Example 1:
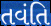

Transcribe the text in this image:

તવંતિ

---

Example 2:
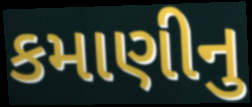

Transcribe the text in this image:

કમાણીનુ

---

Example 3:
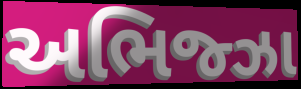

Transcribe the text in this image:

અભિજ્ઝા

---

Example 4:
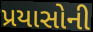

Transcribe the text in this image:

પ્રયાસોની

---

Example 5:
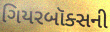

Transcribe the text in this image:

ગિયરબૉક્સની